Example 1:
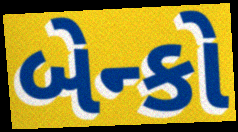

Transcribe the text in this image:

બેન્કો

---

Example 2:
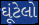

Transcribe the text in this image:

ઘૂંટેલો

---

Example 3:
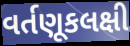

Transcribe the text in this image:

વર્તણૂકલક્ષી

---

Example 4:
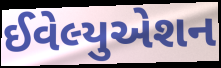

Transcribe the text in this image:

ઈવેલ્યુએશન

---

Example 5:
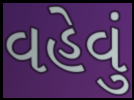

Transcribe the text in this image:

વહેવું